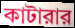
কাটারার